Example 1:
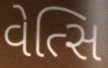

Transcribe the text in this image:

વેત્સિ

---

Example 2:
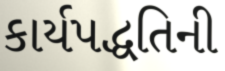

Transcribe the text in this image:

કાર્યપદ્ધતિની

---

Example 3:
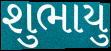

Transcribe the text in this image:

શુભાયુ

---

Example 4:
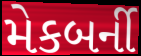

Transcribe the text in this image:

મેકબર્ની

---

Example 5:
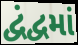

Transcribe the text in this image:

દ્વંદ્વમાં